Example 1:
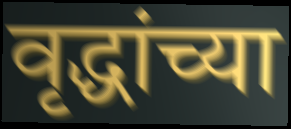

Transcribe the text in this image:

वृद्धांच्या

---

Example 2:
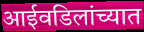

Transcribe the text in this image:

आईवडिलांच्यात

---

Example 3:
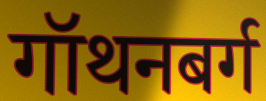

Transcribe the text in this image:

गॉथनबर्ग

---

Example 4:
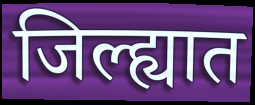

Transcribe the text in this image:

जिल्ह्यात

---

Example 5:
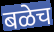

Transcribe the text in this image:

बळेच